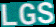
LGS